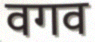
वगव